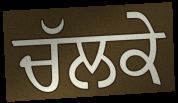
ਚੱਲਕੇ